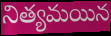
నిత్యమయిన